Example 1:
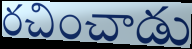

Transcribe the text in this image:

రచించాడు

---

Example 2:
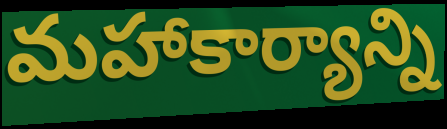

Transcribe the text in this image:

మహాకార్యాన్ని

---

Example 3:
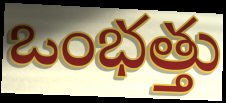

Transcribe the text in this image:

ఒంభత్తు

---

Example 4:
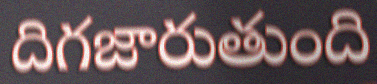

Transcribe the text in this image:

దిగజారుతుంది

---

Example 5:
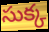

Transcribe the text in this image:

సుక్క